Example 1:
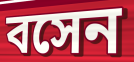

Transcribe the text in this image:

বসেন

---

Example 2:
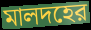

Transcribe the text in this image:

মালদহের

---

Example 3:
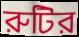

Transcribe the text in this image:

রুটির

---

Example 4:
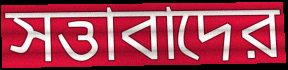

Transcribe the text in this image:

সত্তাবাদের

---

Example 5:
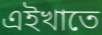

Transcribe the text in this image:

এইখাতে